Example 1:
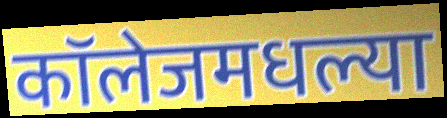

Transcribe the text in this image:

कॉलेजमधल्या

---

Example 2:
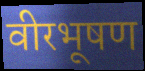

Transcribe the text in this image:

वीरभूषण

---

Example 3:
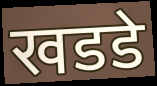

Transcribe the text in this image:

खडडे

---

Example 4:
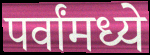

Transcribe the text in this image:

पर्वांमध्ये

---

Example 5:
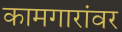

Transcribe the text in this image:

कामगारांवर